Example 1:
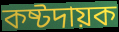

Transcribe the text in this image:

কষ্টদায়ক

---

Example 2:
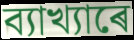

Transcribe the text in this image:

ব্যাখ্যাৰে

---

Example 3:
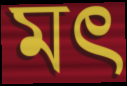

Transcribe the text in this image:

মৎ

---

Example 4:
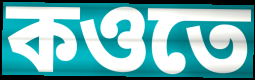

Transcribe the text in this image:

কওতে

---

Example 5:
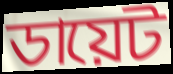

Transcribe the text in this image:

ডায়েট